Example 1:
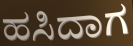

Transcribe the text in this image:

ಹಸಿದಾಗ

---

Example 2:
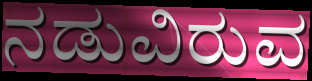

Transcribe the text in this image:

ನಡುವಿರುವ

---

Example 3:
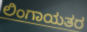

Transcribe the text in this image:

ಲಿಂಗಾಯತರ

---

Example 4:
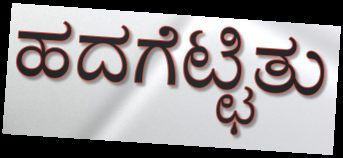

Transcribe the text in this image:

ಹದಗೆಟ್ಟಿತು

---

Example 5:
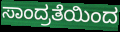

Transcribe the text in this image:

ಸಾಂದ್ರತೆಯಿಂದ